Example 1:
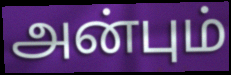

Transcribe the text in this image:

அன்பும்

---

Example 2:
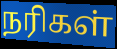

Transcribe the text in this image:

நரிகள்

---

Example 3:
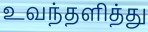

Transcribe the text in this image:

உவந்தளித்து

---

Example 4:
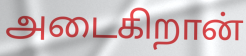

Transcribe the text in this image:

அடைகிறான்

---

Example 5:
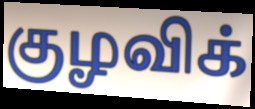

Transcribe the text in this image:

குழவிக்